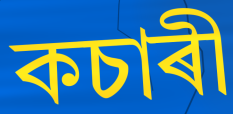
কচাৰী